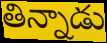
తిన్నాడు